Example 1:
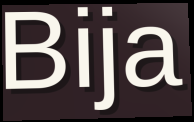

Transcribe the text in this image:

Bija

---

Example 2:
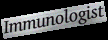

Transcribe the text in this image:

Immunologist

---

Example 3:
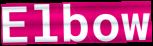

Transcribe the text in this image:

Elbow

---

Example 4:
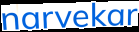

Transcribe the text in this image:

narvekar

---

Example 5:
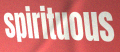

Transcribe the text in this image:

spirituous